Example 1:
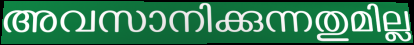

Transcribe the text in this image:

അവസാനിക്കുന്നതുമില്ല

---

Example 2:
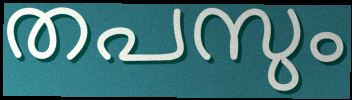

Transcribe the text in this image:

തപസും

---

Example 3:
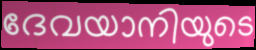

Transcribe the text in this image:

ദേവയാനിയുടെ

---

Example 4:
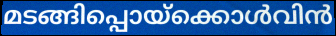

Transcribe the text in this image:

മടങ്ങിപ്പൊയ്ക്കൊൾവിൻ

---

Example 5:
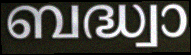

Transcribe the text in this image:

ബദ്ധ്വാ